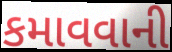
કમાવવાની